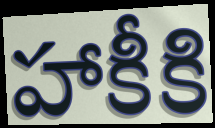
హాకీకి